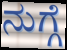
ನುಗ್ಗೆ